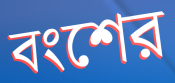
বংশের